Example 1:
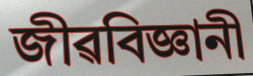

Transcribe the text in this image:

জীৱবিজ্ঞানী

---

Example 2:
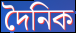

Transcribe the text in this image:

দৈনিক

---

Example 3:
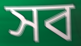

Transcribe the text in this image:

সব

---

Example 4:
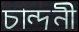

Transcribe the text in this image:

চান্দনী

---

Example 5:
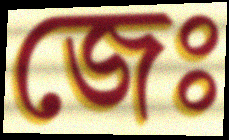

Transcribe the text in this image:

জেঃ